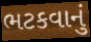
ભટકવાનું